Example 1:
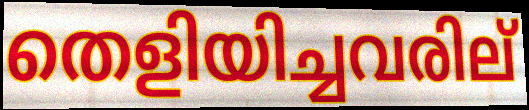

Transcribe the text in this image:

തെളിയിച്ചവരില്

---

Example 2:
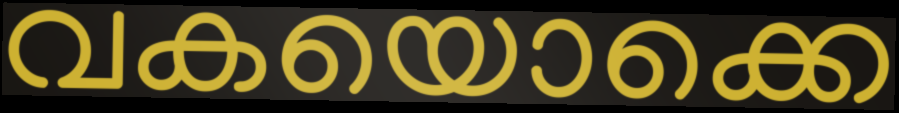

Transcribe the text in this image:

വകയൊക്കെ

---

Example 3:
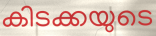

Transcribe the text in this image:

കിടക്കയുടെ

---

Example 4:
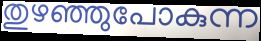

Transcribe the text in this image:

തുഴഞ്ഞുപോകുന്ന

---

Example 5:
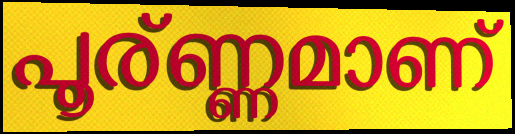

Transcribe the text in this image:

പൂര്ണ്ണമാണ്